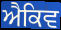
ਐਕਿਵ